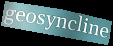
geosyncline